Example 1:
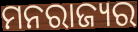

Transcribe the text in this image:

ମନରାଜ୍ୟର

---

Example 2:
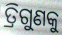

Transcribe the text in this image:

ତ୍ରିଗୁଣକୁ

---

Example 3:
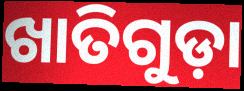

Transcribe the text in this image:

ଖାତିଗୁଡ଼ା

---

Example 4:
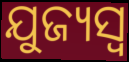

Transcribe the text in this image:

ଯୁଜ୍ୟସ୍ୱ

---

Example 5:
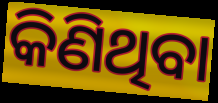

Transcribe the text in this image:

କିଣିଥିବା